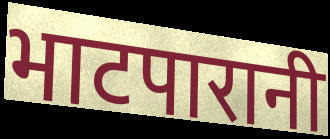
भाटपारानी